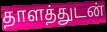
தாளத்துடன்